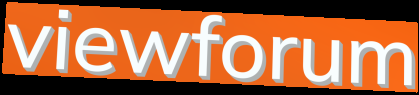
viewforum